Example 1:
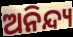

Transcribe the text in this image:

ଅନିନ୍ଦ୍ୟ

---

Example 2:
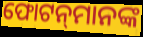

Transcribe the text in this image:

ଫୋଟନ୍‍ମାନଙ୍କ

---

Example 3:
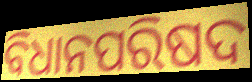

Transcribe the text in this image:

ବିଧାନପରିଷଦ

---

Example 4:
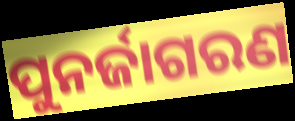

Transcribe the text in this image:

ପୁନର୍ଜାଗରଣ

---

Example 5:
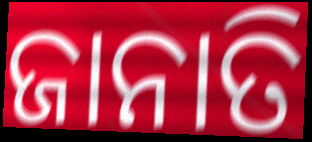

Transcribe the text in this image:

ଜାନାତି